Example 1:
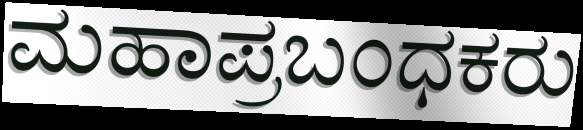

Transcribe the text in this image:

ಮಹಾಪ್ರಬಂಧಕರು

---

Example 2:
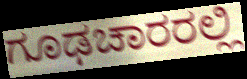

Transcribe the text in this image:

ಗೂಢಚಾರರಲ್ಲಿ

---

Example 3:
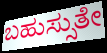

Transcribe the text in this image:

ಬಹುಸ್ಸುತೇ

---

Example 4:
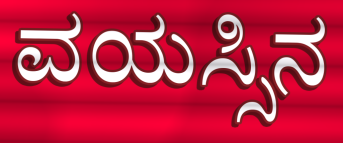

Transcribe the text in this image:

ವಯಸ್ಸಿನ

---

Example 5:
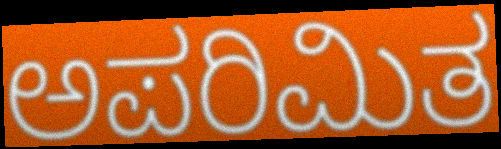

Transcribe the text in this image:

ಅಪರಿಮಿತ